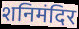
शनिमंदिर